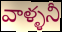
వాళ్ళనీ